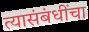
त्यासंबंधींचा